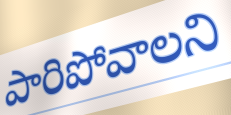
పారిపోవాలని